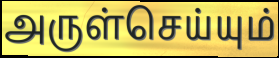
அருள்செய்யும்